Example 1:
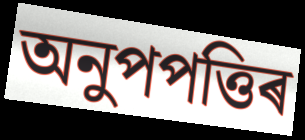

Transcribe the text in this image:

অনুপপত্তিৰ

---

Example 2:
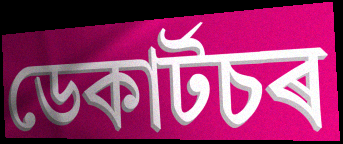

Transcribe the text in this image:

ডেকাৰ্টচৰ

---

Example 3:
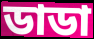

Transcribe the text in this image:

ডাডা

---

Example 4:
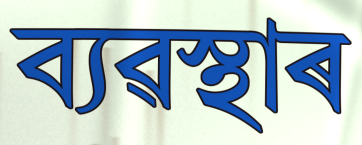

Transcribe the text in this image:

ব্য়ৱস্থাৰ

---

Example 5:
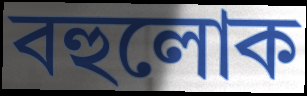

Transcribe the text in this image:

বহুলোক